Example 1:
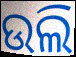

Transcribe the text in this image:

ଉଲି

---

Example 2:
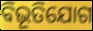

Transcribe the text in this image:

ବିଭୂତିଯୋଗ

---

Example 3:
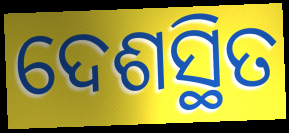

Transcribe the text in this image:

ଦେଶସ୍ଥିତ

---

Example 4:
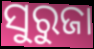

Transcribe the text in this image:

ସୁରୁଜା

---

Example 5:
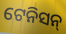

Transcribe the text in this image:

ଟେନିସନ୍